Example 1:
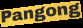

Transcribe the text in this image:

Pangong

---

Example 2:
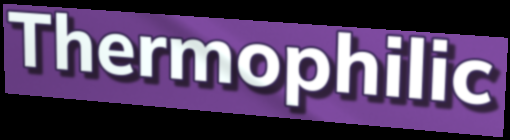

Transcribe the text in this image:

Thermophilic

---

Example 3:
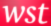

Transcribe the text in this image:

wst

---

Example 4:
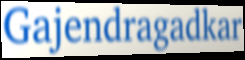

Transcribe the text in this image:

Gajendragadkar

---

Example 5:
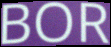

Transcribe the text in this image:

BOR